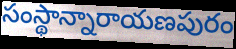
సంస్థాన్నారాయణపురం